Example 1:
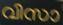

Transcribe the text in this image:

വിസാ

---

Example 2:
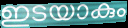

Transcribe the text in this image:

ഇടയാകും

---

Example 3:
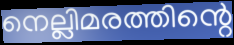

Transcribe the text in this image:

നെല്ലിമരത്തിന്റെ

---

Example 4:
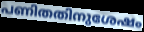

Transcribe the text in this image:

പണിതതിനുശേഷം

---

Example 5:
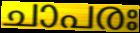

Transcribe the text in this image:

ചാപരഃ